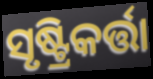
ସୃଷ୍ଟ୍ରିକର୍ତ୍ତା